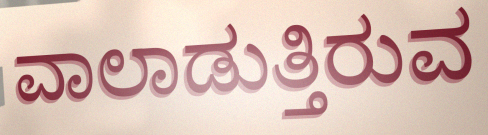
ವಾಲಾಡುತ್ತಿರುವ